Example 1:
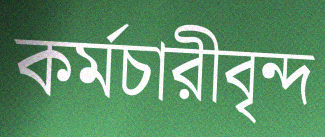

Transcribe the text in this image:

কর্মচারীবৃন্দ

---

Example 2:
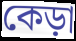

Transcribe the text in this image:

কেড়া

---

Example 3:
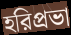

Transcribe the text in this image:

হরিপ্রভা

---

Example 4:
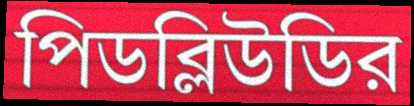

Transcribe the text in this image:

পিডব্লিউডির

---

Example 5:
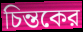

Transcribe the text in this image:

চিন্তকের